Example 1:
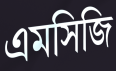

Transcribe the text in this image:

এমসিজি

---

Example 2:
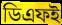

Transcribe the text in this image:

ডিএফই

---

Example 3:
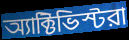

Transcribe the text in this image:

অ্যাক্টিভিস্টরা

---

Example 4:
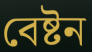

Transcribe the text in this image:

বেষ্টন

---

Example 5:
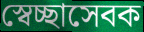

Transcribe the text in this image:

স্বেচ্ছাসেবক